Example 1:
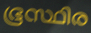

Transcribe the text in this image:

ഭൂസ്ഥിര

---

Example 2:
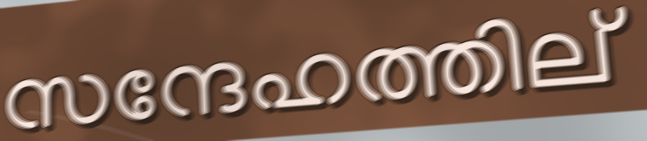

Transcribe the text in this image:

സന്ദേഹത്തില്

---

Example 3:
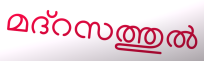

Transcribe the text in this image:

മദ്റസത്തുൽ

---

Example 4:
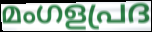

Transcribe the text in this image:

മംഗളപ്രദ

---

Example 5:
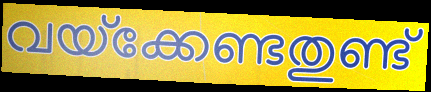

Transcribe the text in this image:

വയ്‌ക്കേണ്ടതുണ്ട്